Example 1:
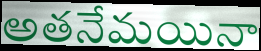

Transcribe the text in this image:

అతనేమయినా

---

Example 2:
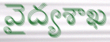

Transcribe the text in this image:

వైద్యశాఖ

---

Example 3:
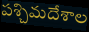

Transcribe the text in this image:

పశ్చిమదేశాల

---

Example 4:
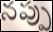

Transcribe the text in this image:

నప్పు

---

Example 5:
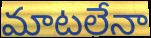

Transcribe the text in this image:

మాటలేనా